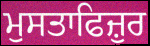
ਮੁਸਤਾਫਿਜ਼ੁਰ